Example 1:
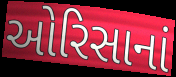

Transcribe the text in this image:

ઓરિસાનાં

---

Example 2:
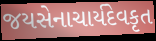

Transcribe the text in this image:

જયસેનાચાર્યદેવકૃત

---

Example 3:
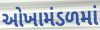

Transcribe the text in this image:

ઓખામંડળમાં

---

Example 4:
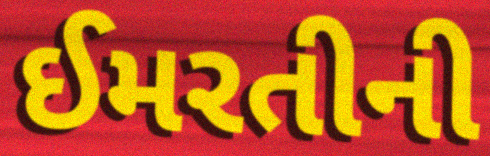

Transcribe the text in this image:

ઈમરતીની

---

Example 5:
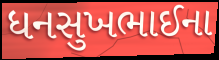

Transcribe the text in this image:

ધનસુખભાઈના